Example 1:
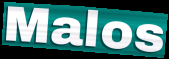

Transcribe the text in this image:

Malos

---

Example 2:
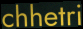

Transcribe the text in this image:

chhetri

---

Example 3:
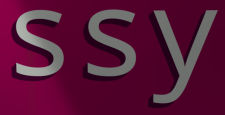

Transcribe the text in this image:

ssy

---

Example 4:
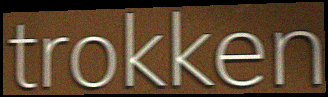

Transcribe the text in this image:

trokken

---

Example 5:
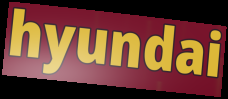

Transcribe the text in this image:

hyundai